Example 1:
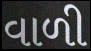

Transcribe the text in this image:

વાળી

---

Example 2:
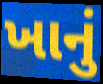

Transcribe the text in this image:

ખાનું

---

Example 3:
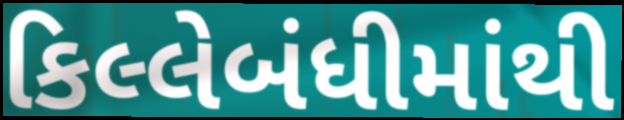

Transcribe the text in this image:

કિલ્લેબંધીમાંથી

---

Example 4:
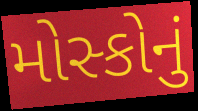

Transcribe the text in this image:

મોસ્કોનું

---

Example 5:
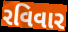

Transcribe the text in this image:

રવિવાર